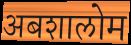
अबशालोम